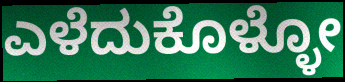
ಎಳೆದುಕೊಳ್ಳೋ